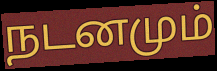
நடனமும்